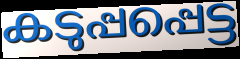
കടുപ്പപ്പെട്ട